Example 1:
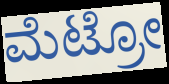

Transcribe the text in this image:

ಮೆಟ್ರೋ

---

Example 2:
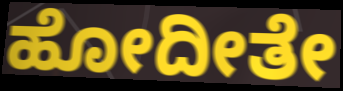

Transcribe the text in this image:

ಹೋದೀತೇ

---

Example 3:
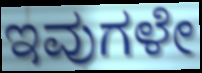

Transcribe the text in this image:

ಇವುಗಳೇ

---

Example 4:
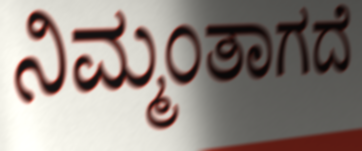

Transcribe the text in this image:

ನಿಮ್ಮಂತಾಗದೆ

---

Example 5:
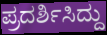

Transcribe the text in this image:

ಪ್ರದರ್ಶಿಸಿದ್ದು